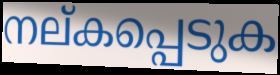
നല്കപ്പെടുക